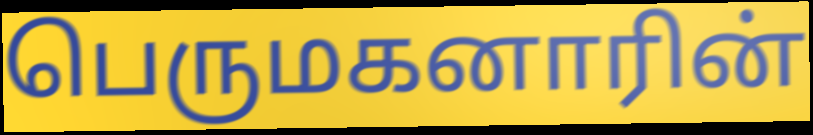
பெருமகனாரின்